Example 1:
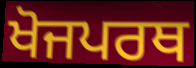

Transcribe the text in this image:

ਖੋਜਪਰਥ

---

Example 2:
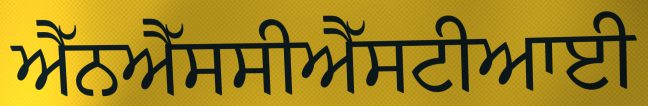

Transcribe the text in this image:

ਐੱਨਐੱਸਸੀਐੱਸਟੀਆਈ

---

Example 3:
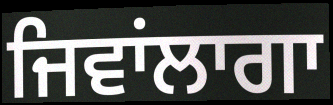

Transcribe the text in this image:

ਜਿਵਾਂਲਾਗਾ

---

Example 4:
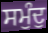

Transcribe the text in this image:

ਸਮੁੰਦੁ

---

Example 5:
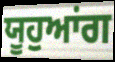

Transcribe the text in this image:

ਯੂਹੁਆਂਗ